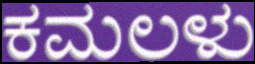
ಕಮಲಳು